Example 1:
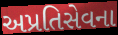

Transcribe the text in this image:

અપ્રતિસેવના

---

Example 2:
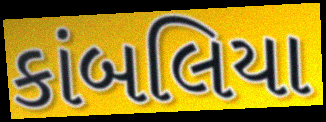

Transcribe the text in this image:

કાંબલિયા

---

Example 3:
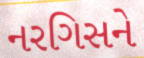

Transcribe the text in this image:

નરગિસને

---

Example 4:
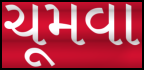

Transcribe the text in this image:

ચૂમવા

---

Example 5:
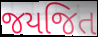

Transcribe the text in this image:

જયજિત